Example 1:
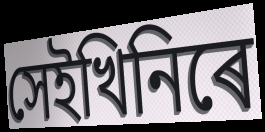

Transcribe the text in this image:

সেইখিনিৰে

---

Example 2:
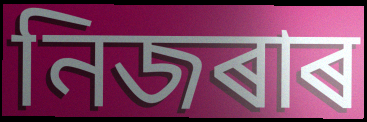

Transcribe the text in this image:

নিজৰাৰ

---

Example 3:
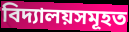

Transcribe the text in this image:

বিদ্যালয়সমূহত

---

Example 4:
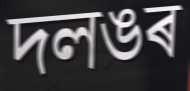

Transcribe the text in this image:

দলঙৰ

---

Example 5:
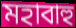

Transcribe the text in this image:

মহাবাহু